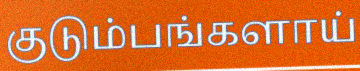
குடும்பங்களாய்